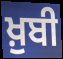
ਖ਼ੁਬੀ